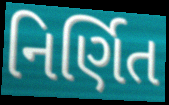
નિર્ણિત